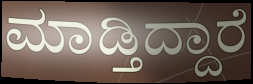
ಮಾಡ್ತಿದ್ದಾರೆ